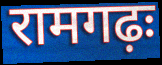
रामगढ़ः